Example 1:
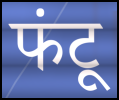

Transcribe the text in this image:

फंटू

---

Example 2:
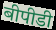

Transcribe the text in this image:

बीपीडी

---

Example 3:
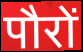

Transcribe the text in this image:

पौरों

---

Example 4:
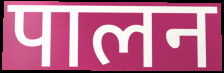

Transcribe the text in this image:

पालन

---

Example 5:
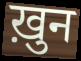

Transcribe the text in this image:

ख़ुन